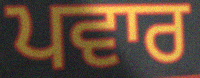
ਪਵਾਰ